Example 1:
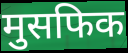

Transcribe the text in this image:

मुसफिक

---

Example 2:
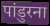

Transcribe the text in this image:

पांडुरना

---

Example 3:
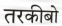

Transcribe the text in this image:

तरकीबो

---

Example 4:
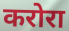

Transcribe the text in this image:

करोरा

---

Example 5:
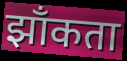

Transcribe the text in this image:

झाँकता